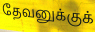
தேவனுக்குக்